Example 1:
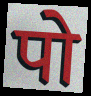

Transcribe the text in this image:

पो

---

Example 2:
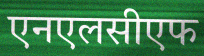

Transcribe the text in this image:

एनएलसीएफ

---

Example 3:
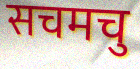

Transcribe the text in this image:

सचमचु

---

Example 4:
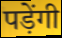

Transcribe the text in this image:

पड़ेंगी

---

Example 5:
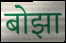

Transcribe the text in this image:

बोझा